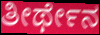
ತೀರ್ಥೇನ